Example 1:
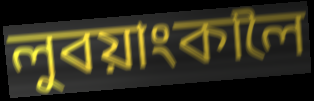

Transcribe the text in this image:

লুবয়াংকালৈ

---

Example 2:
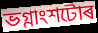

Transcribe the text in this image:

ভগ্নাংশটোৰ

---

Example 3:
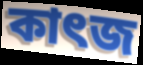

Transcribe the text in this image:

কাৎজ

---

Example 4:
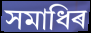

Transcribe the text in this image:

সমাধিৰ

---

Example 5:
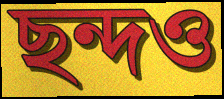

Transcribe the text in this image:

ছন্দও